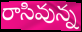
రాసివున్న